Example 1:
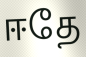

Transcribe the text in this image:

ஈதே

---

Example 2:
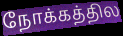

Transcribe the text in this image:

நோக்கத்தில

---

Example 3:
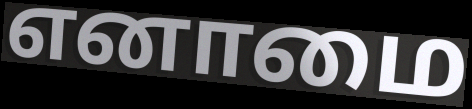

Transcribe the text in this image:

எனாமை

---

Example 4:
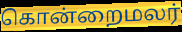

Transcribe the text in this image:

கொன்றைமலர்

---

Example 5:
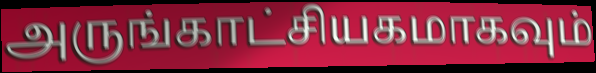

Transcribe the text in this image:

அருங்காட்சியகமாகவும்